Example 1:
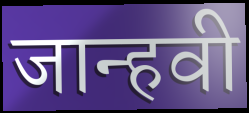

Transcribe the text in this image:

जान्हवी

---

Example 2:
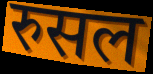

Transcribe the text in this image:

रुसल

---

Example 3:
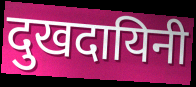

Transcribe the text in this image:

दुखदायिनी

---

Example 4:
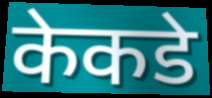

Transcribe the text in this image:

केकडे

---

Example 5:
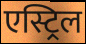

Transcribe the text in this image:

एस्ट्रिल